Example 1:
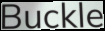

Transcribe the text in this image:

Buckle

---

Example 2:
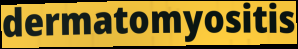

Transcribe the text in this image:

dermatomyositis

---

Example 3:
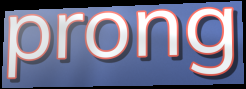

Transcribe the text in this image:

prong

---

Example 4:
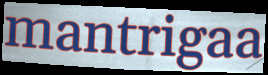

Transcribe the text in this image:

mantrigaa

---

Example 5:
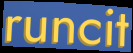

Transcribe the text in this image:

runcit